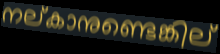
നല്കാനുണ്ടെങ്കില്